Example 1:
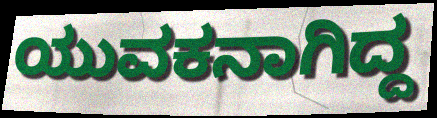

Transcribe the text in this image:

ಯುವಕನಾಗಿದ್ದ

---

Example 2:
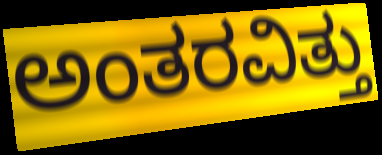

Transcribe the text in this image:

ಅಂತರವಿತ್ತು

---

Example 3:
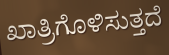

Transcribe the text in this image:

ಖಾತ್ರಿಗೊಳಿಸುತ್ತದೆ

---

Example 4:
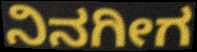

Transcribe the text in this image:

ನಿನಗೀಗ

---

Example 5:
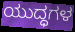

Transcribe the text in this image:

ಯುದ್ಧಗಳ